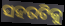
ସହରଟିକୁ